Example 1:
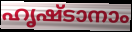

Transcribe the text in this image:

ഹൃഷ്ടാനാം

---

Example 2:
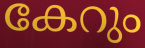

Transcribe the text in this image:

കേറും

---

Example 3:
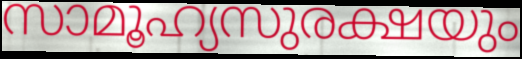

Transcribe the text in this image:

സാമൂഹ്യസുരക്ഷയും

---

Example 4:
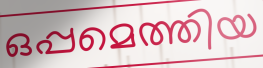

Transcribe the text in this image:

ഒപ്പമെത്തിയ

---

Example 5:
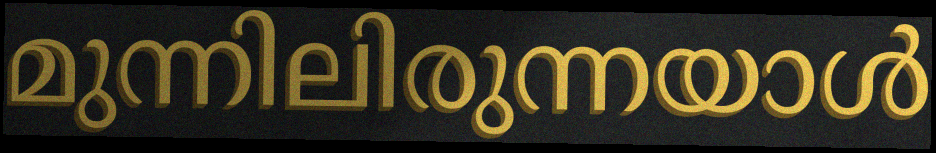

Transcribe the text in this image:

മുന്നിലിരുന്നയാൾ